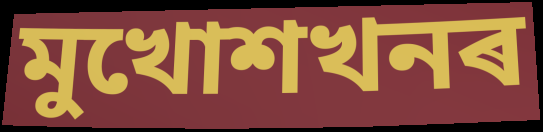
মুখোশখনৰ